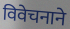
विवेचनाने